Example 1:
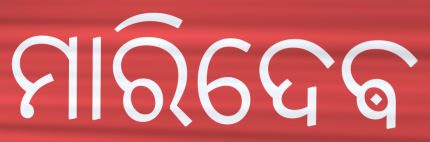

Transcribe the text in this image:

ମାରିଦେଵ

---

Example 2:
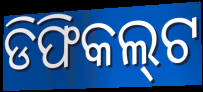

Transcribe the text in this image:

ଡିଫିକଲ୍‌ଟ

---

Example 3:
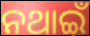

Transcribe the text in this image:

ନଥାଇଁ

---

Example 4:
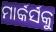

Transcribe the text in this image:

ମାର୍କର୍ସକୁ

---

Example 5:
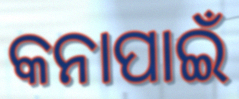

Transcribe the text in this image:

କନାପାଇଁ